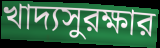
খাদ্যসুরক্ষার